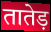
तातेड़